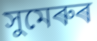
সুমেৰুৰ